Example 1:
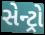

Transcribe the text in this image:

સેન્ટ્રો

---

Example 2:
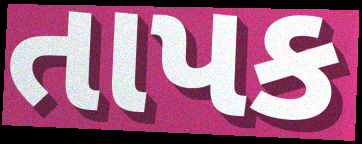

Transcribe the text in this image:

તાપક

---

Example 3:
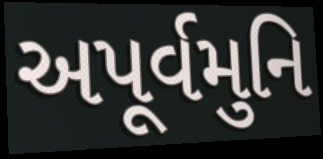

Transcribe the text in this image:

અપૂર્વમુનિ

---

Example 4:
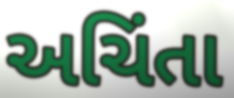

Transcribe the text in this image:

અચિંતા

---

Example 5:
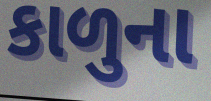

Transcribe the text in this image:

કાળુના